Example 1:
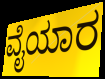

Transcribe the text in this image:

ವೈಯಾರ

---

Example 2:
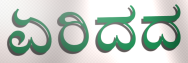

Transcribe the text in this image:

ಏರಿದದ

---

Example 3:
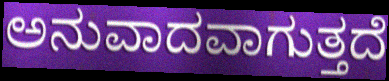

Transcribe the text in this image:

ಅನುವಾದವಾಗುತ್ತದೆ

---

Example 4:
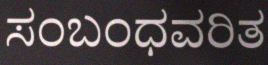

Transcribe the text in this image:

ಸಂಬಂಧವರಿತ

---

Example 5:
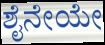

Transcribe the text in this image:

ಶೈನೇಯೇ